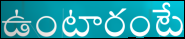
ఉంటారంటే